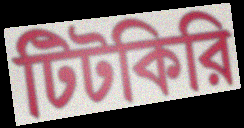
টিটকিরি